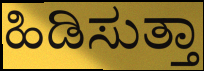
ಹಿಡಿಸುತ್ತಾ